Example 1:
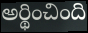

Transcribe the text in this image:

అర్థించింది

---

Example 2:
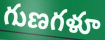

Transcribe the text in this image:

గుణగళూ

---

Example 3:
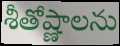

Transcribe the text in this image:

శీతోష్ణాలను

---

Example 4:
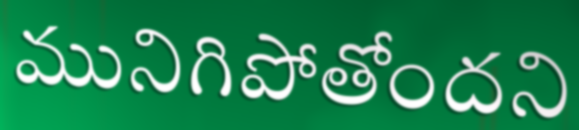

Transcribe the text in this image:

మునిగిపోతోందని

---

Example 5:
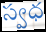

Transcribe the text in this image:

స్వధ